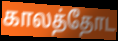
காலத்தோட